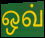
ஒவ்